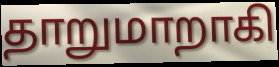
தாறுமாறாகி